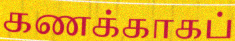
கணக்காகப்